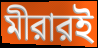
মীরারই